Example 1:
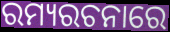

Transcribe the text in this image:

ରମ୍ୟରଚନାରେ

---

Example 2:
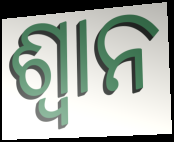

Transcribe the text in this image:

ଶ୍ୱାନ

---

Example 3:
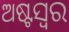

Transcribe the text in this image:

ଅଷ୍ଟସ୍ୱର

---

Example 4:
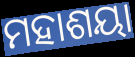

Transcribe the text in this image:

ମହାଶୟା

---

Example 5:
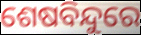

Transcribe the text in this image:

ଶେଷବିନ୍ଦୁରେ